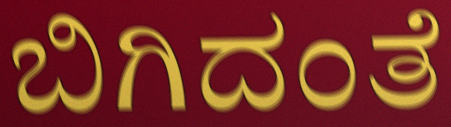
ಬಿಗಿದಂತೆ